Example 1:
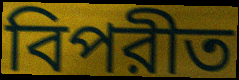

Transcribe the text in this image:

বিপরীত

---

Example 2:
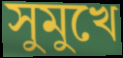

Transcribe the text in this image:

সুমুখে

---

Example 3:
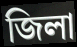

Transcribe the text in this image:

জিলা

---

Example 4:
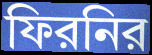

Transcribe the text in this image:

ফিরনির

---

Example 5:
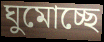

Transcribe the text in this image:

ঘুমোচ্ছে